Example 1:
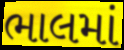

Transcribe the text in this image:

ભાલમાં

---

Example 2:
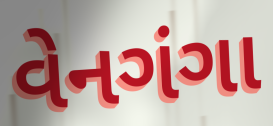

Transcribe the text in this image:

વેનગંગા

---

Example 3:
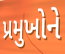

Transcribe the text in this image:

પ્રમુખોને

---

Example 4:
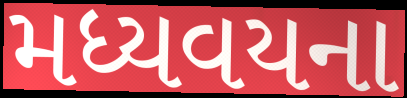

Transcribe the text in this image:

મધ્યવયના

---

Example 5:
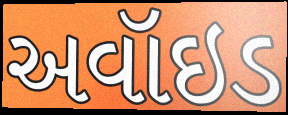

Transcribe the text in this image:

અવૉઇડ